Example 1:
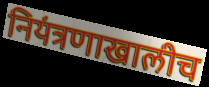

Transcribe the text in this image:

नियंत्रणाखालीच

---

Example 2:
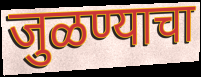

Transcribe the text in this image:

जुळण्याचा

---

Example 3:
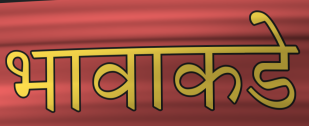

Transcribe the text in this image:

भावाकडे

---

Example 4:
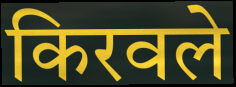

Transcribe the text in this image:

किरवले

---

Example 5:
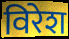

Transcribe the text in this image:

विरेश